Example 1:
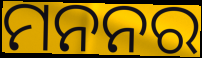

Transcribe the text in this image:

ମନନର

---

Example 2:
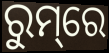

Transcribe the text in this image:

ରୁମ୍‌ରେ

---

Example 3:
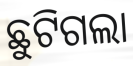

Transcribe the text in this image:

ଛୁଟିଗଲା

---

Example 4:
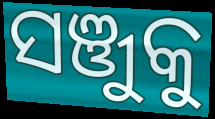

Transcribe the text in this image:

ସଞ୍ଜୁକୁ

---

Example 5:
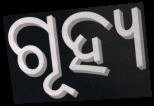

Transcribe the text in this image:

ଗୂହ୍ୟ